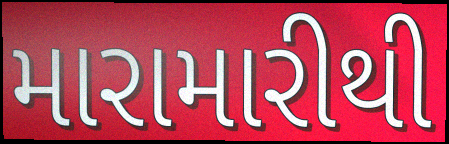
મારામારીથી